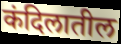
कंदिलातील